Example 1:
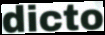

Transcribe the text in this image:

dicto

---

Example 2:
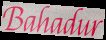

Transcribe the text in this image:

Bahadur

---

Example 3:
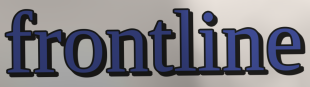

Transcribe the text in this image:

frontline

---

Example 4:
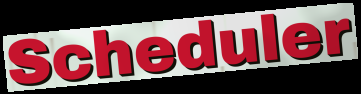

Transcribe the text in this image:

Scheduler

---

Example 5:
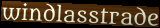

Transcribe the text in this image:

windlasstrade